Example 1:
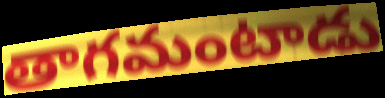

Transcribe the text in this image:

తాగమంటాడు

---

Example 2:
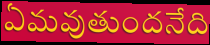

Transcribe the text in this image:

ఏమవుతుందనేది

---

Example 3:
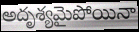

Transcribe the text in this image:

అదృశ్యమైపోయినా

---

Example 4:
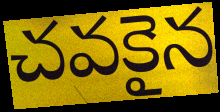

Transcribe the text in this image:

చవకైన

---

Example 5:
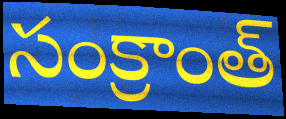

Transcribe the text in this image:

సంక్రాంత్